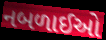
નબળાઈઓ